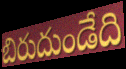
బిరుదుండేది